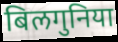
बिलगुनिया